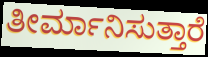
ತೀರ್ಮಾನಿಸುತ್ತಾರೆ